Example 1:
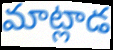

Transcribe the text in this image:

మాట్లాడ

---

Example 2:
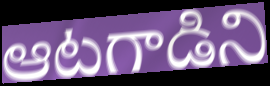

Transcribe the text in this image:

ఆటగాడిని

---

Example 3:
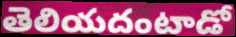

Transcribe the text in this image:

తెలియదంటాడో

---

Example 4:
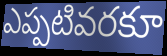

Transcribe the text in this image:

ఎప్పటివరకూ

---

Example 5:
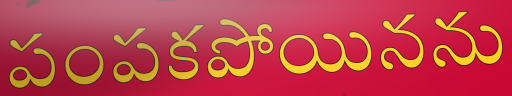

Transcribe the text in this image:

పంపకపోయినను